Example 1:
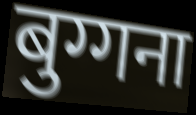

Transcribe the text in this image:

बुग्गना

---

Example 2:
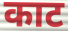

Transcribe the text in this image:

काट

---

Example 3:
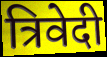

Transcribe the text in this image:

त्रिवेदी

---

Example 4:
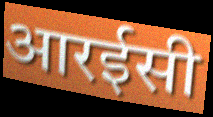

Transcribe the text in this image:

आरईसी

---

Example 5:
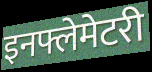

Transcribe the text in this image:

इनफ्लेमेटरी